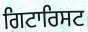
ਗਿਟਾਰਿਸਟ